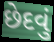
છેદવું